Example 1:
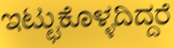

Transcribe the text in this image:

ಇಟ್ಟುಕೊಳ್ಳದಿದ್ದರೆ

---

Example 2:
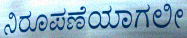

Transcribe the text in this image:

ನಿರೂಪಣೆಯಾಗಲೀ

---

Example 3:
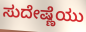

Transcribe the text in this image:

ಸುದೇಷ್ಣೆಯು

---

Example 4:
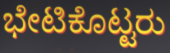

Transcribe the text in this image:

ಭೇಟಿಕೊಟ್ಟರು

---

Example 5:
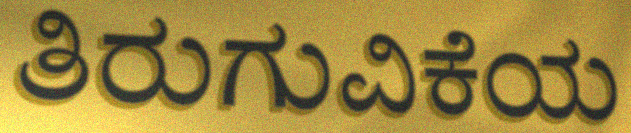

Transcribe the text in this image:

ತಿರುಗುವಿಕೆಯ